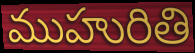
ముహురితి